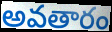
అవతారం